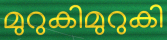
മുറുകിമുറുകി